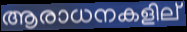
ആരാധനകളില്